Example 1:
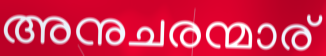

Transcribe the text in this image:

അനുചരന്മാര്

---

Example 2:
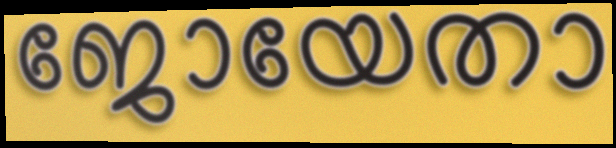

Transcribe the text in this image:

ജോയേതാ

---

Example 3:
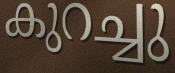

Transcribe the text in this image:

കുറച്ചു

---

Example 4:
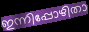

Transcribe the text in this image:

ഇന്നിപ്പോഴിതാ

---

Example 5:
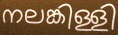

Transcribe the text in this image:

നലങ്കിള്ളി